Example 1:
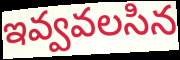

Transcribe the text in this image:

ఇవ్వవలసిన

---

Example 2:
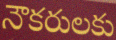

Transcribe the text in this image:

నౌకరులకు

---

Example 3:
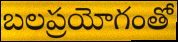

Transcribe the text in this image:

బలప్రయోగంతో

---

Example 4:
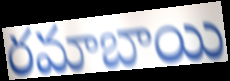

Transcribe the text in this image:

రమాబాయి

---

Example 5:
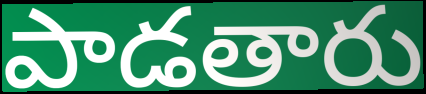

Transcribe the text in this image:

పాడతారు